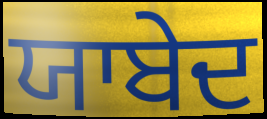
ਯਾਬੇਦ